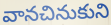
వానచినుకుని